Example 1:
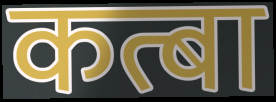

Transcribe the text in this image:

कत्बा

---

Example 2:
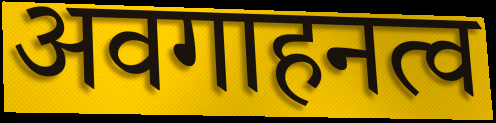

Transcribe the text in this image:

अवगाहनत्व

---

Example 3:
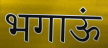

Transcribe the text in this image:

भगाऊं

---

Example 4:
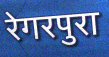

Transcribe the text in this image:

रेगरपुरा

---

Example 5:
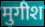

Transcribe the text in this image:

मुगीश